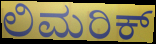
ಲಿಮರಿಕ್